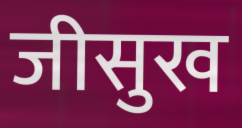
जीसुख